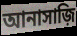
আনাসাজ়ি